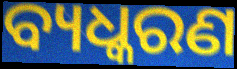
ବ୍ୟଧ୍କରଣ